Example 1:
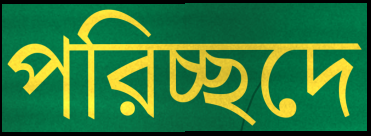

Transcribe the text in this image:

পরিচ্ছদে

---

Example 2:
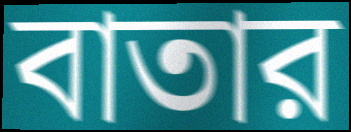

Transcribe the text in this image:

বাতার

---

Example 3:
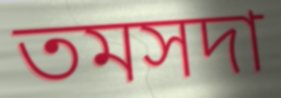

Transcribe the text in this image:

তমসদা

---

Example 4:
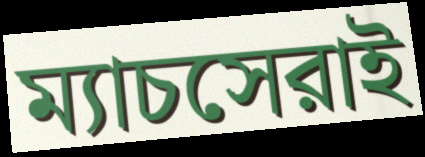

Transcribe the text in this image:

ম্যাচসেরাই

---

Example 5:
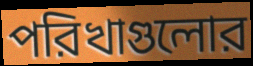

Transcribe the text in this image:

পরিখাগুলোর